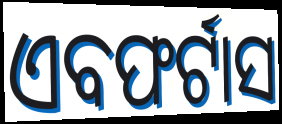
ଏବଫର୍ଟାସ